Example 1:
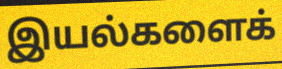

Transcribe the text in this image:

இயல்களைக்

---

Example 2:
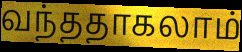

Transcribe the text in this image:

வந்ததாகலாம்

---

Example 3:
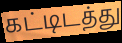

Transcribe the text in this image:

கட்டிடத்து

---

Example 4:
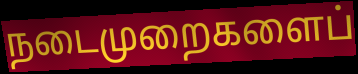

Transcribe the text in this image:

நடைமுறைகளைப்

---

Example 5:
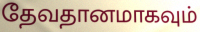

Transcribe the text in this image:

தேவதானமாகவும்